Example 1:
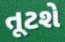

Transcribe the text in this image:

તૂટશે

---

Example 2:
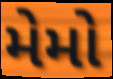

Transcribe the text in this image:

મેમો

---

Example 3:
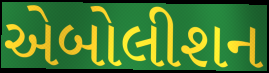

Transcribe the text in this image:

એબોલીશન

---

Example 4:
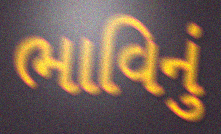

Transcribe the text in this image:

ભાવિનું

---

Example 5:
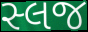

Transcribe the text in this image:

સ્લજ